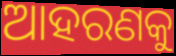
ଆହରଣକୁ